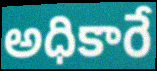
అధికారే